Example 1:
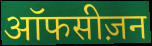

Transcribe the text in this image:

ऑफसीज़न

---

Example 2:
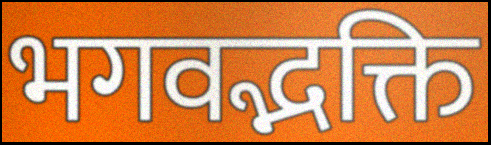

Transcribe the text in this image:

भगवद्भक्ति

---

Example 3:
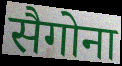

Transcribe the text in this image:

सैगोना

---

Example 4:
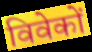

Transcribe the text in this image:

विवेकों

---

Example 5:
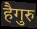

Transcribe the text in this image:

हैगुरु